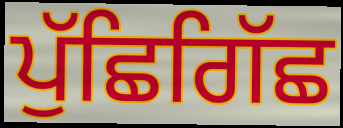
ਪੁੱਛਿਗਿੱਛ